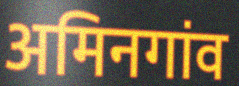
अमिनगांव